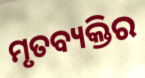
ମୃତବ୍ୟକ୍ତିର